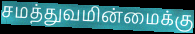
சமத்துவமின்மைக்கு